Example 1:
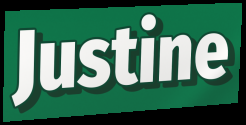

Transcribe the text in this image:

Justine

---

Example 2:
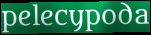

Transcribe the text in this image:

pelecypoda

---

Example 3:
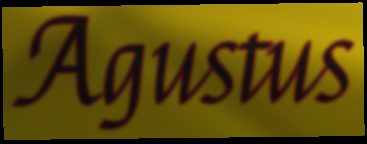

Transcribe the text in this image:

Agustus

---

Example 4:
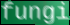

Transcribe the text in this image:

fungi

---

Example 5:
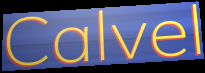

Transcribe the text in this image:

Calvel